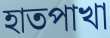
হাতপাখা